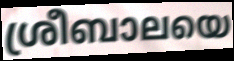
ശ്രീബാലയെ